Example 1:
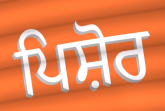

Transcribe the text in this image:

ਪਿਸ਼ੋਰ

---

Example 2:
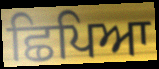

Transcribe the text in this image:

ਛਿਪਿਆ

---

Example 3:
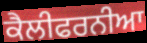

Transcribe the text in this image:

ਕੈਲੀਫਰਨੀਆ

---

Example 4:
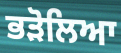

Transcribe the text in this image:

ਭੜੋਲਿਆ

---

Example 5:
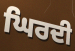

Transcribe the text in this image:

ਘਿਰਦੀ